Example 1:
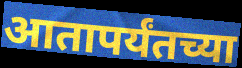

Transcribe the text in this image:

आतापर्यंतच्या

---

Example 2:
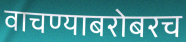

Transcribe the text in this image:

वाचण्याबरोबरच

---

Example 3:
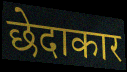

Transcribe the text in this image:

छेदाकार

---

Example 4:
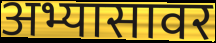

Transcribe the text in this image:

अभ्यासावर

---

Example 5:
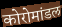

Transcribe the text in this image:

कोरोमांडल